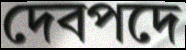
দেবপদে